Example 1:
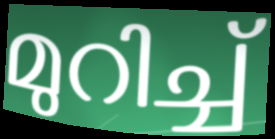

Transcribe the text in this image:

മുറിച്ച്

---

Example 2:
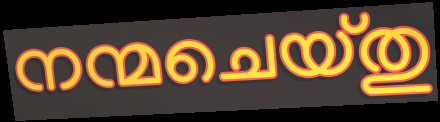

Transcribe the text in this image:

നന്മചെയ്തു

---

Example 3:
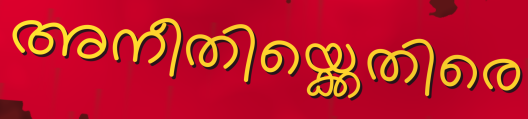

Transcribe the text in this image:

അനീതിയ്ക്കെതിരെ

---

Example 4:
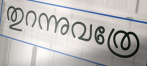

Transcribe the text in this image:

തുറന്നുവത്രേ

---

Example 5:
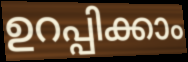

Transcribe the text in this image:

ഉറപ്പിക്കാം